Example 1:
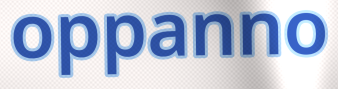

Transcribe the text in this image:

oppanno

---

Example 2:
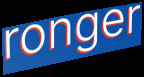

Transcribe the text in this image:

ronger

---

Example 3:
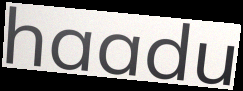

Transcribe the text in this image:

haadu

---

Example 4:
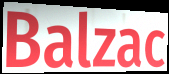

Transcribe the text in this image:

Balzac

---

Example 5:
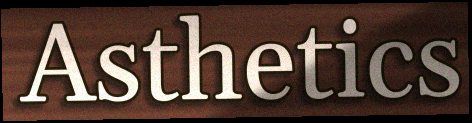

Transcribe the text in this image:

Asthetics